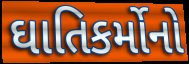
ઘાતિકર્મોનો